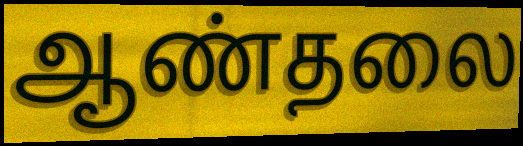
ஆண்தலை